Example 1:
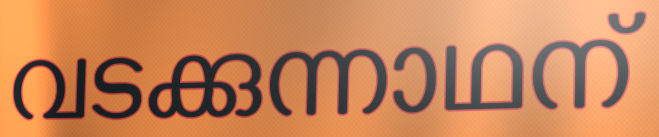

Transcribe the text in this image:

വടക്കുന്നാഥന്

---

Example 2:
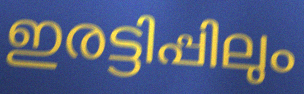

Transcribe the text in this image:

ഇരട്ടിപ്പിലും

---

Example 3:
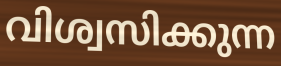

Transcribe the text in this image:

വിശ്വസിക്കുന്ന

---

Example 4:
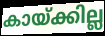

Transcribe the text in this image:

കായ്ക്കില്ല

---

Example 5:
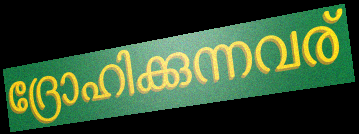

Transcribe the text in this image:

ദ്രോഹിക്കുന്നവര്